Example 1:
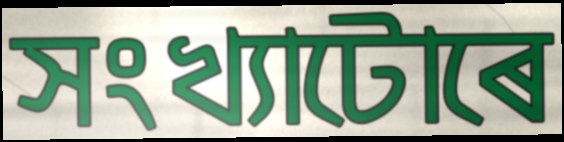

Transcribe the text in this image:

সংখ্যাটোৰে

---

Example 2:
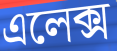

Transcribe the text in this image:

এলেক্স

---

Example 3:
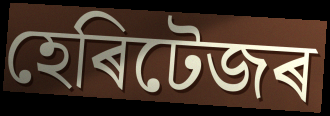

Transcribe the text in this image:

হেৰিটেজৰ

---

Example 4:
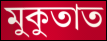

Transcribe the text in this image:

মুকুতাত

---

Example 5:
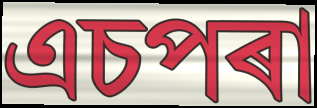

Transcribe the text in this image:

এচপৰা